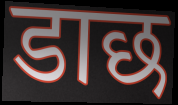
डाछ